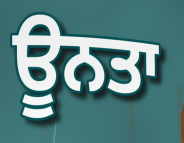
ਊਨਤਾ